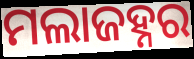
ମଲାଜହ୍ନର